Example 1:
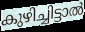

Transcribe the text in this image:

കുഴിച്ചിട്ടാൽ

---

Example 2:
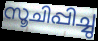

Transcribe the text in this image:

സൂചിപ്പിച്ചു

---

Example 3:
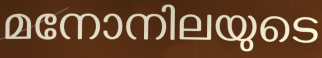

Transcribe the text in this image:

മനോനിലയുടെ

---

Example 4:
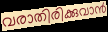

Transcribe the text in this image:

വരാതിരിക്കുവാൻ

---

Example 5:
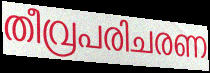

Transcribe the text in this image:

തീവ്രപരിചരണ